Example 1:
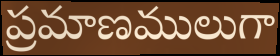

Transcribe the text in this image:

ప్రమాణములుగా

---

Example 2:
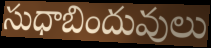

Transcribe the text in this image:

సుధాబిందువులు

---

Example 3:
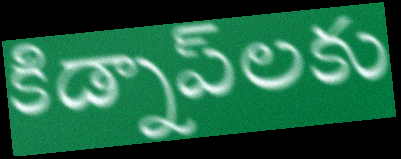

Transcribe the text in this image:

కిడ్నాప్‌లకు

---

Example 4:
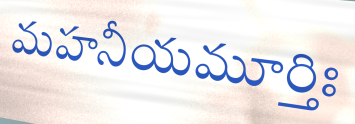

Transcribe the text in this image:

మహనీయమూర్తిః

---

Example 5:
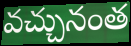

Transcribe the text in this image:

వచ్చునంత